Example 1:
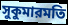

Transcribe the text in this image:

সুকুমারমতি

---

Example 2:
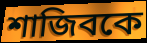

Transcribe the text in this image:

শাজিবকে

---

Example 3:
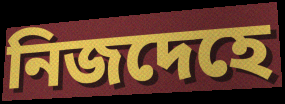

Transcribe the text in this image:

নিজদেহে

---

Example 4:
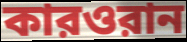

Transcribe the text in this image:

কারওরান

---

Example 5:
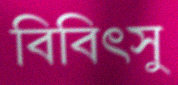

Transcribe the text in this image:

বিবিৎসু